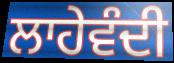
ਲਾਹੇਵੰਦੀ